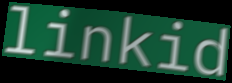
linkid